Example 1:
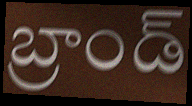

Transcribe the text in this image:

బ్రాండ్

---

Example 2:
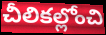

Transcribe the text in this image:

చీలికల్లోంచి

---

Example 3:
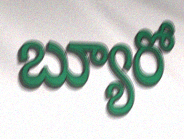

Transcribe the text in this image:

బ్యూరో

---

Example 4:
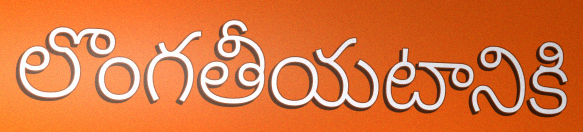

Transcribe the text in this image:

లొంగతీయటానికి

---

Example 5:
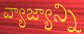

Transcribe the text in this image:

వ్యాజ్యాన్ని